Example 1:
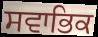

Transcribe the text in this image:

ਸਵਾਭਿਕ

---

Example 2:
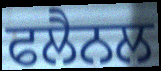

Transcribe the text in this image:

ਫਲੈਨਲ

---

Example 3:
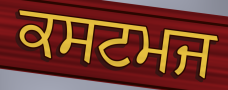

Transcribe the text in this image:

ਕਸਟਮਜ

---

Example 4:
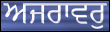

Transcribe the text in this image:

ਅਜਰਾਵਰੁ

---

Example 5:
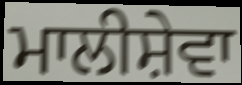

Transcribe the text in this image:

ਮਾਲੀਸ਼ੇਵਾ